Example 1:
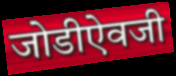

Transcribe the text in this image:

जोडीऐवजी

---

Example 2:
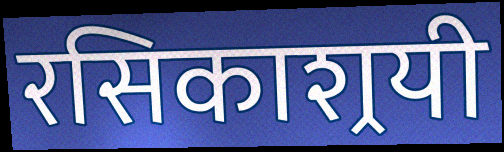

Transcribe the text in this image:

रसिकाश्रयी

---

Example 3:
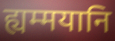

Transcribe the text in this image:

ह्यम्मयानि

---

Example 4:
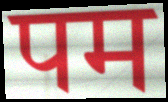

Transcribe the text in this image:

पम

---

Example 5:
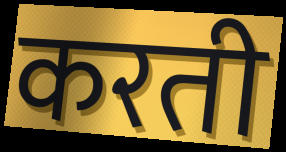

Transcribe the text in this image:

करती